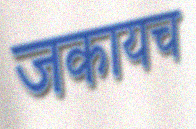
जकायच